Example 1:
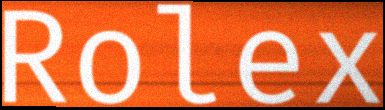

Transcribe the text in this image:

Rolex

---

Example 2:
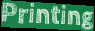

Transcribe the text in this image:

Printing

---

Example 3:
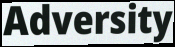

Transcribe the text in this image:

Adversity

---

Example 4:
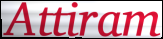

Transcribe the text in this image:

Attiram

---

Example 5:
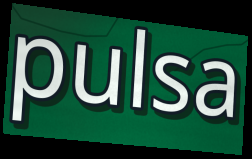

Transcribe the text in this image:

pulsa